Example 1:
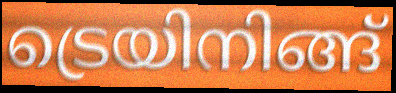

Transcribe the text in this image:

ട്രെയിനിങ്ങ്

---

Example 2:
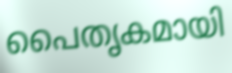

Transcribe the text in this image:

പൈതൃകമായി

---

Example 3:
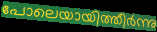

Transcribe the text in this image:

പോലെയായിത്തീർന്നു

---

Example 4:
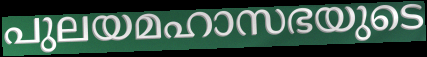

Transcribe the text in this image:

പുലയമഹാസഭയുടെ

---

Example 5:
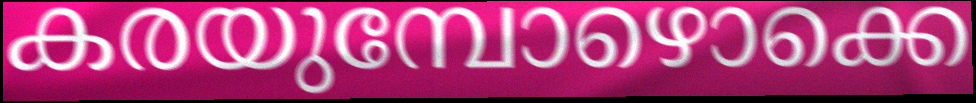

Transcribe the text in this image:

കരയുമ്പോഴൊക്കെ